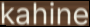
kahine